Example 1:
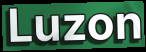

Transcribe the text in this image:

Luzon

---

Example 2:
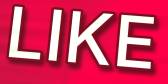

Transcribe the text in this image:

LIKE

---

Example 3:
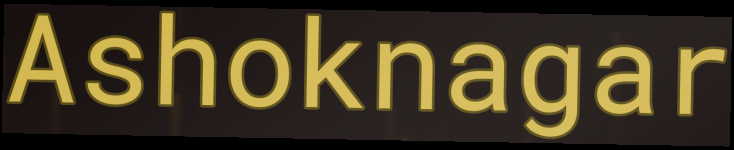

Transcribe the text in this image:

Ashoknagar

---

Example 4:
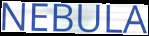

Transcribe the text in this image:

NEBULA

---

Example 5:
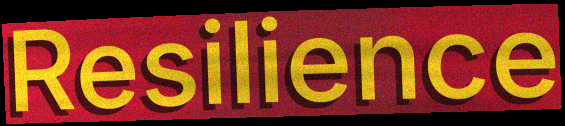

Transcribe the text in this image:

Resilience